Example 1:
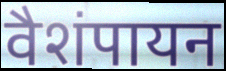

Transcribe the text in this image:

वैशंपायन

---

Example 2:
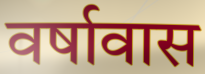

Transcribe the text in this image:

वर्षावास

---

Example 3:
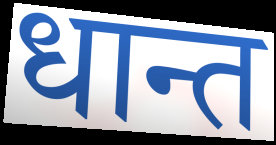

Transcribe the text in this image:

धान्त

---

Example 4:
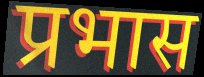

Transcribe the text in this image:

प्रभास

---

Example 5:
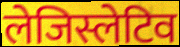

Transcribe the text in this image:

लेजिस्लेटिव